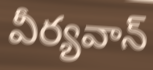
వీర్యవాన్